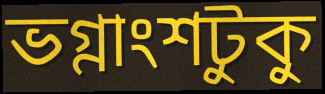
ভগ্নাংশটুকু